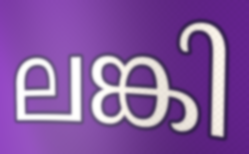
ലങ്കി